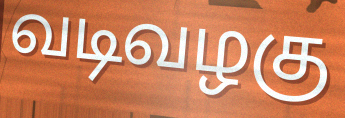
வடிவழகு